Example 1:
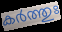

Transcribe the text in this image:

കർത്തുഃ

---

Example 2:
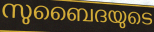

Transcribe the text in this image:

സുബൈദയുടെ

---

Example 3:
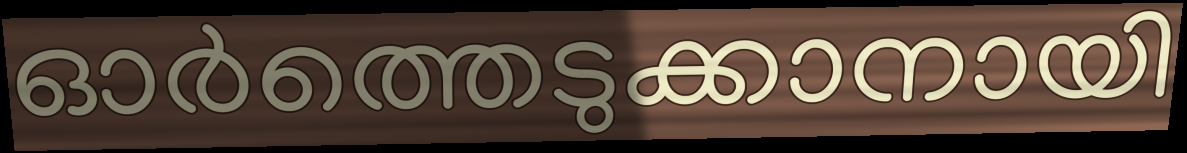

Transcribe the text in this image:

ഓർത്തെടുക്കാനായി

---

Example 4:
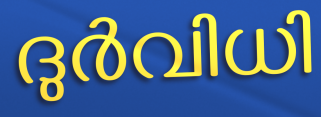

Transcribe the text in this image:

ദുർവിധി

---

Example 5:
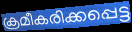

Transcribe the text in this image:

ക്രമീകരിക്കപ്പെട്ട